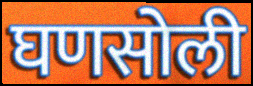
घणसोली